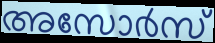
അസോർസ്